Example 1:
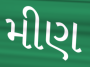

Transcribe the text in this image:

મીણ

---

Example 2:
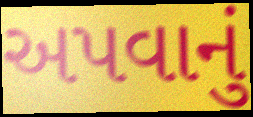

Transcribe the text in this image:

અપવાનું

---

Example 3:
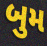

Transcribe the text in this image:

બુમ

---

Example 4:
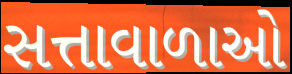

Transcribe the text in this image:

સત્તાવાળાઓ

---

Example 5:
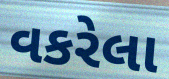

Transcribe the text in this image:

વકરેલા